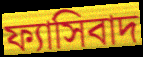
ফ্যাসিবাদ